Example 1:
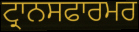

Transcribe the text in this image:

ਟ੍ਰਾਨਸਫਾਰਮਰ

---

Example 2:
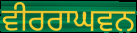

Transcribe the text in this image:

ਵੀਰਰਾਘਵਨ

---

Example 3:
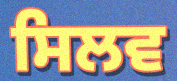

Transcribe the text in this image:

ਸਿਲਵ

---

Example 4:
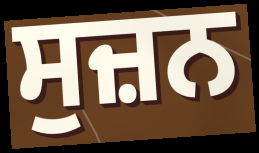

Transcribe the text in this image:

ਸੁਜ਼ਨ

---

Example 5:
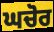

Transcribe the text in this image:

ਘਚੋਰ